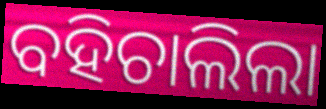
ବହିଚାଲିଲା